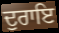
ਦੁਰਾਇ